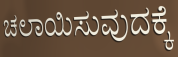
ಚಲಾಯಿಸುವುದಕ್ಕೆ